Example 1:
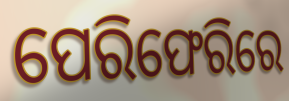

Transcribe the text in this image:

ପେରିଫେରିରେ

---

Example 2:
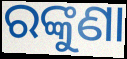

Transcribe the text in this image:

ରଙ୍କୁଣା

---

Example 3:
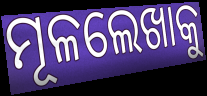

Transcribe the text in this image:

ମୂଳଲେଖାକୁ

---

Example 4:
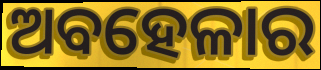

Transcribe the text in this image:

ଅବହେଳାର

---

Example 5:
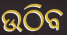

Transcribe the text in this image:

ଉଠିବ